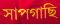
সাপগাছি